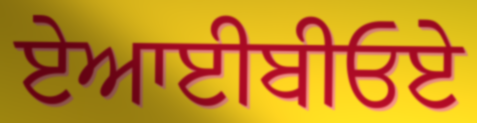
ਏਆਈਬੀਓਏ